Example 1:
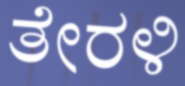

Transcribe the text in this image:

ತೇರಳಿ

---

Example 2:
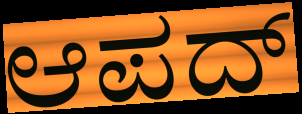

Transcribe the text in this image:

ಆಪದ್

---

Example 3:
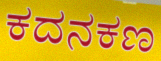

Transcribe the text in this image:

ಕದನಕಣ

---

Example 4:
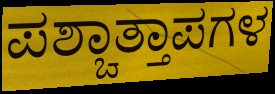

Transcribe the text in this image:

ಪಶ್ಚಾತ್ತಾಪಗಳ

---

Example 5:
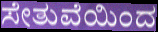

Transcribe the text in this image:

ಸೇತುವೆಯಿಂದ